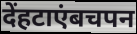
देंहटाएंबचपन